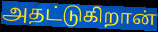
அதட்டுகிறான்